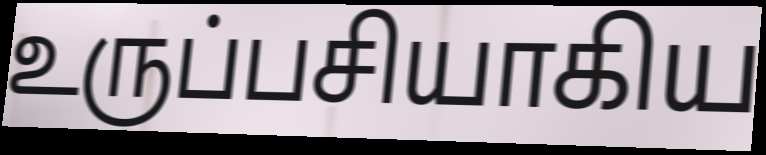
உருப்பசியாகிய